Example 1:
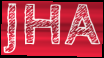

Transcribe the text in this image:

JHA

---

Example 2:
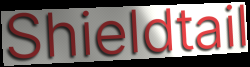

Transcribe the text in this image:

Shieldtail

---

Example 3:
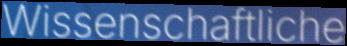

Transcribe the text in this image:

Wissenschaftliche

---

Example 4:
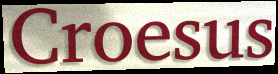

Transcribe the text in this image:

Croesus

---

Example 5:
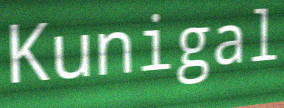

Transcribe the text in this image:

Kunigal